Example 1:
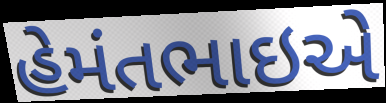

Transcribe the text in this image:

હેમંતભાઇએ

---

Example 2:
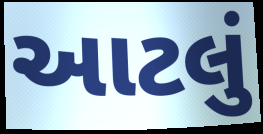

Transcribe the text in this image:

આટલું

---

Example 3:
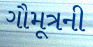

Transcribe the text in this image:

ગૌમૂત્રની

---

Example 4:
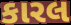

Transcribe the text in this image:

કારલ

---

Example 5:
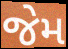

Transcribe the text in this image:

જેમ